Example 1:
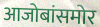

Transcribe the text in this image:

आजोबांसमोर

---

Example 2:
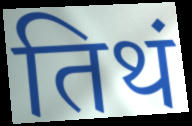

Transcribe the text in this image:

तिथं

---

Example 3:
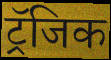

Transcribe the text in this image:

ट्रॅजिक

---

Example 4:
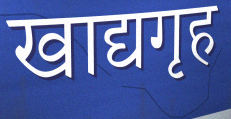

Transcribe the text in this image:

खाद्यगृह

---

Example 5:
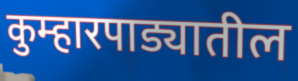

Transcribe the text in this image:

कुम्हारपाड्यातील